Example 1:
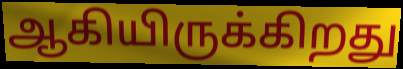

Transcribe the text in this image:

ஆகியிருக்கிறது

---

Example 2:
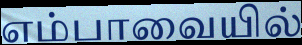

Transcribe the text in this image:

எம்பாவையில்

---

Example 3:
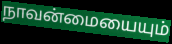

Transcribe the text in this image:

நாவன்மையையும்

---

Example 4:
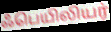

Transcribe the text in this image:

ஃபெயிலியர்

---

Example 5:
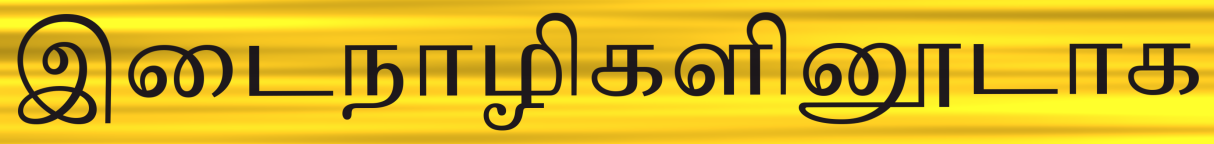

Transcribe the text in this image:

இடைநாழிகளினூடாக